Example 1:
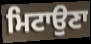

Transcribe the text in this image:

ਮਿਟਾਉਣਾ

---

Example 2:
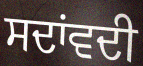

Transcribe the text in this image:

ਸਦਾਂਵਦੀ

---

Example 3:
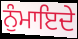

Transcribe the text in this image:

ਨੁੰਮਾਇਦੇ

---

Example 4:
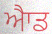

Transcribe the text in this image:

ਐਾਡ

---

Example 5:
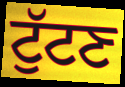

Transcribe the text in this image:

ਟੁੱਟਣ